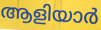
ആളിയാർ